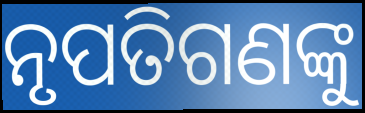
ନୃପତିଗଣଙ୍କୁ